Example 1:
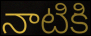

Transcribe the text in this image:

నాటికి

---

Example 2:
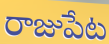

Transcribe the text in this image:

రాజుపేట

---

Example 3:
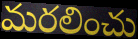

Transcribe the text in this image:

మరలించు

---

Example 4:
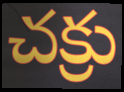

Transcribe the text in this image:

చక్రు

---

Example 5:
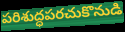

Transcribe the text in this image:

పరిశుద్ధపరచుకొనుడి